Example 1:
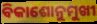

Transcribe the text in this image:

ବିକାଶୋନୁମୁଖୀ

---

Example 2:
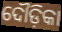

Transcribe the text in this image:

ଦୌଡ଼ିକା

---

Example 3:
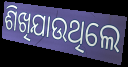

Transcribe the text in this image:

ଶିଖିଯାଉଥିଲେ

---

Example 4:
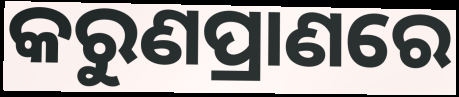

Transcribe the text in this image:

କରୁଣପ୍ରାଣରେ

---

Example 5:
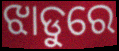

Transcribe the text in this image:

ଝାଡୁରେ